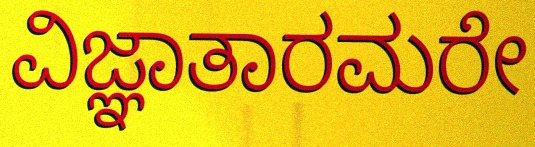
ವಿಜ್ಞಾತಾರಮರೇ